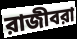
রাজীবরা